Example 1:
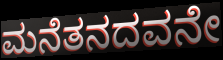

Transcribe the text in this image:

ಮನೆತನದವನೇ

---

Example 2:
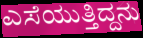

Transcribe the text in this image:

ಎಸೆಯುತ್ತಿದ್ದನು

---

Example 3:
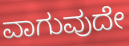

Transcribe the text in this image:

ವಾಗುವುದೇ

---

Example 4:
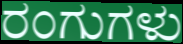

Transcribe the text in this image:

ರಂಗುಗಳು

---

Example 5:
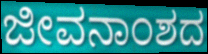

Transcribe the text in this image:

ಜೀವನಾಂಶದ